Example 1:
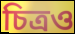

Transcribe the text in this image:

চিত্রও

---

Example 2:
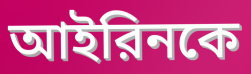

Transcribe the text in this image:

আইরিনকে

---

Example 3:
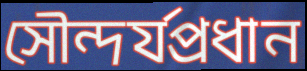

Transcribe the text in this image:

সৌন্দর্যপ্রধান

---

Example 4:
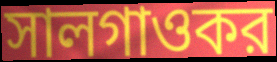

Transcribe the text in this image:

সালগাওকর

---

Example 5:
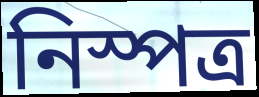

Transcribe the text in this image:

নিস্পত্র